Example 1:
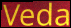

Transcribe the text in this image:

Veda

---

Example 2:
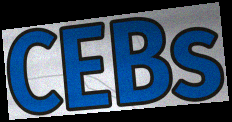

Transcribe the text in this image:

CEBs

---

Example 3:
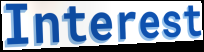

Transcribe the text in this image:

Interest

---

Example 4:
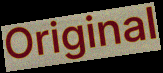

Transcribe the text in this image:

Original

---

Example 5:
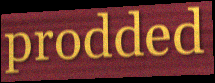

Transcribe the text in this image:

prodded